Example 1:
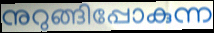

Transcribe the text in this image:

നുറുങ്ങിപ്പോകുന്ന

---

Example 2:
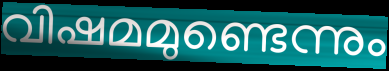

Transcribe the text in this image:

വിഷമമുണ്ടെന്നും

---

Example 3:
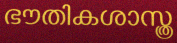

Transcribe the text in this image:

ഭൗതികശാസ്ത്ര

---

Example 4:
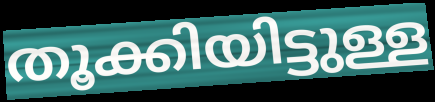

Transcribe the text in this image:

തൂക്കിയിട്ടുള്ള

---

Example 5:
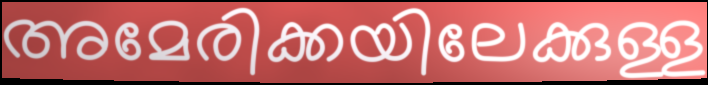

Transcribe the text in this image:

അമേരിക്കയിലേക്കുള്ള